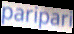
paripari